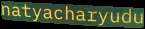
natyacharyudu